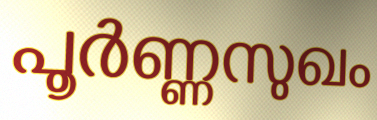
പൂർണ്ണസുഖം